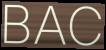
BAC